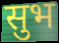
सुभ